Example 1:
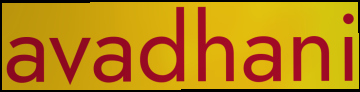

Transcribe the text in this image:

avadhani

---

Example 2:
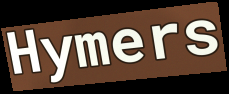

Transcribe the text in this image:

Hymers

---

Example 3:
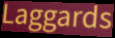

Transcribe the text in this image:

Laggards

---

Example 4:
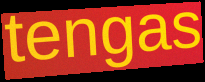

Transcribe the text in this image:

tengas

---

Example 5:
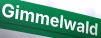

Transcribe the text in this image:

Gimmelwald